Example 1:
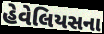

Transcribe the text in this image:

હેવેલિયસના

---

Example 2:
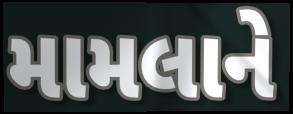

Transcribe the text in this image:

મામલાને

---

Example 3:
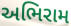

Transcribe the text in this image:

અભિરામ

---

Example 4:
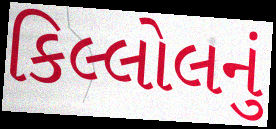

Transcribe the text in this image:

કિલ્લોલનું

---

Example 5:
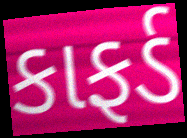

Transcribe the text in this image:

કાફર્ડ